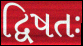
દ્વિષતઃ